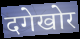
दगेखोर